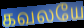
கவலயே